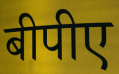
बीपीए